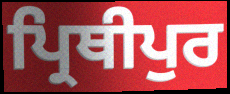
ਪ੍ਰਿਥੀਪੁਰ